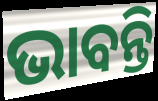
ଭାବନ୍ତି